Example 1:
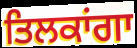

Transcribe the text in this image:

ਤਿਲਕਾਂਗਾ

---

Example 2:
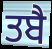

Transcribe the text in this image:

ਤਬੈ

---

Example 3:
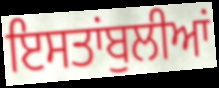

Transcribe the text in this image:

ਇਸਤਾਂਬੁਲੀਆਂ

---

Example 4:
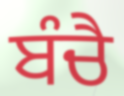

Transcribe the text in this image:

ਬੰਚੈ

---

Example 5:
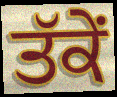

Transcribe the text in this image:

ਤੱਕੇਂ